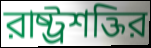
রাষ্ট্রশক্তির